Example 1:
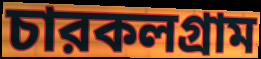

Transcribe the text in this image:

চারকলগ্রাম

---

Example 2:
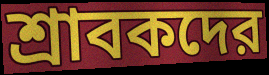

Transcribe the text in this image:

শ্রাবকদের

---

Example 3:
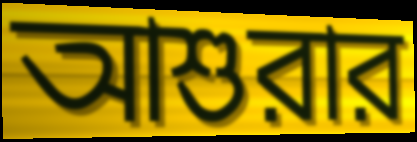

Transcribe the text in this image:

আশুরার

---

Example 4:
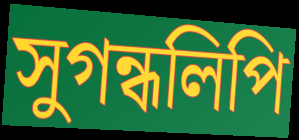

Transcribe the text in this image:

সুগন্ধলিপি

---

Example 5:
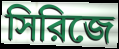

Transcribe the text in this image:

সিরিজে